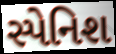
સ્પેનિશ